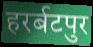
हरर्बटपुर